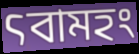
ৎবামহং